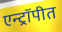
एन्ट्रॉपीत